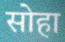
सोहा